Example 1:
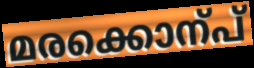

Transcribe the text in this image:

മരക്കൊന്പ്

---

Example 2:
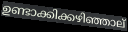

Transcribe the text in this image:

ഉണ്ടാക്കിക്കഴിഞ്ഞാല്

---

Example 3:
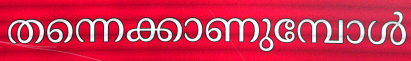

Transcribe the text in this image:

തന്നെക്കാണുമ്പോൾ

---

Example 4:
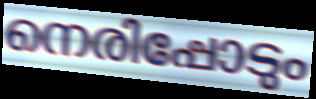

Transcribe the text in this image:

നെരിപ്പോടും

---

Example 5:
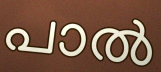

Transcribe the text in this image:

പാൽ